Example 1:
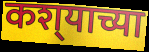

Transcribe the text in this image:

कश्याच्या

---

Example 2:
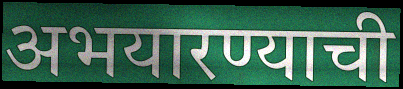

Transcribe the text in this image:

अभयारण्याची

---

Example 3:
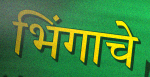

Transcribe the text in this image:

भिंगाचे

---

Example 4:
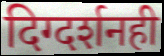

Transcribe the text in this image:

दिग्दर्शनही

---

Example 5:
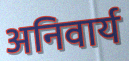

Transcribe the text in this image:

अनिवार्य